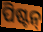
ପିଷ୍ଟନ୍